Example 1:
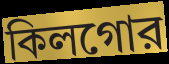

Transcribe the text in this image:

কিলগোর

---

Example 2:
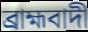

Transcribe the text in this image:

ব্রাহ্মবাদী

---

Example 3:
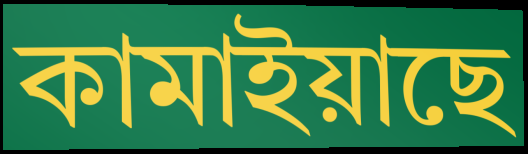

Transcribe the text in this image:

কামাইয়াছে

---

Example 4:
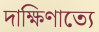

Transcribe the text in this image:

দাক্ষিণাত্যে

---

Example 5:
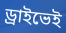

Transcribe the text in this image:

ড্রাইভেই